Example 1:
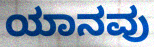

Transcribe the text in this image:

ಯಾನವು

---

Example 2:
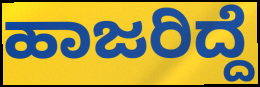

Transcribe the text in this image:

ಹಾಜರಿದ್ದೆ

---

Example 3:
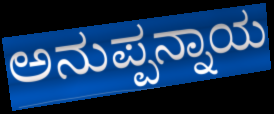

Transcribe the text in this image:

ಅನುಪ್ಪನ್ನಾಯ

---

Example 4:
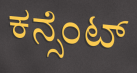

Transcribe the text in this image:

ಕನ್ಸೆಂಟ್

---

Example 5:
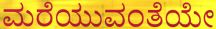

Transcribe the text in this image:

ಮರೆಯುವಂತೆಯೇ